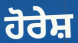
ਹੋਰੇਸ਼